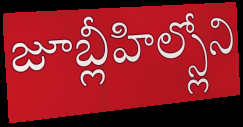
జూబ్లీహిల్స్లోని